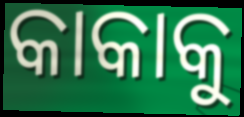
କାକାକୁ